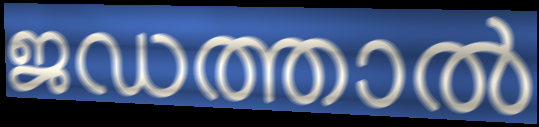
ജഡത്താൽ